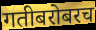
गतीबरोबरच